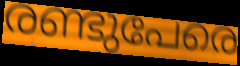
രണ്ടുപേരെ